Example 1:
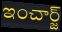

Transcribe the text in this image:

ఇంచార్జ్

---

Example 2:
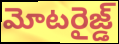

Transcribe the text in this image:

మోటరైజ్డ్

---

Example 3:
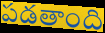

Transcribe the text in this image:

పడతాంది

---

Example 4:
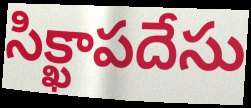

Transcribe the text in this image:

సిక్ఖాపదేసు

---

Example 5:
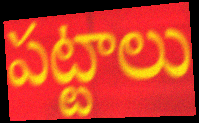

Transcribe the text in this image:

పట్టాలు